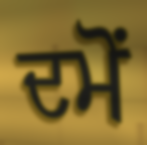
ਦਮੋਂ